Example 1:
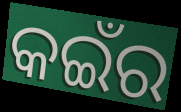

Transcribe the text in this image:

କଇଁର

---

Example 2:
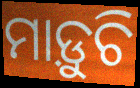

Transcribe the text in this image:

ମାଡ଼ୁଚି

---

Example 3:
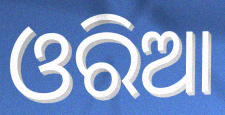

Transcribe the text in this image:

ଓରିଆ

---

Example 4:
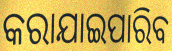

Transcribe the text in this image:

କରାଯାଇପାରିବ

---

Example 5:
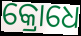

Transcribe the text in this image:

କ୍ରୋଧେ